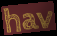
hav